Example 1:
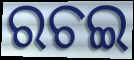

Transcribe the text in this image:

ରଚଇ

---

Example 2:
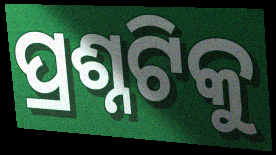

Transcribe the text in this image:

ପ୍ରଶ୍ନଟିକୁ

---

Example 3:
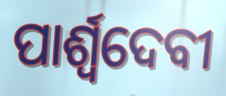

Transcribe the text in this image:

ପାର୍ଶ୍ୱଦେବୀ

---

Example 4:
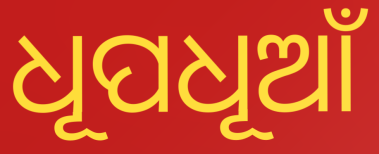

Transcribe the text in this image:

ଧୂପଧୂଆଁ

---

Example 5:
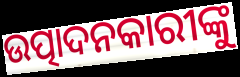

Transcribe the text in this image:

ଉତ୍ପାଦନକାରୀଙ୍କୁ